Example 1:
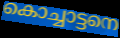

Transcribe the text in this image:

കൊച്ചാട്ടനെ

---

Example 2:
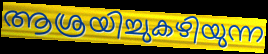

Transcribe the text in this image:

ആശ്രയിച്ചുകഴിയുന്ന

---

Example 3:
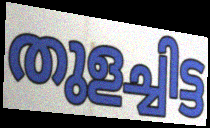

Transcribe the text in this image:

തുളച്ചിട്ട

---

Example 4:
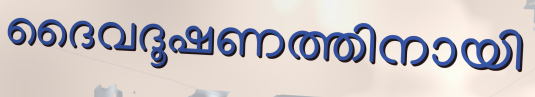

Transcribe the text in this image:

ദൈവദൂഷണത്തിനായി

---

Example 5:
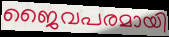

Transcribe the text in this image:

ജൈവപരമായി